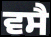
ਵਸੈ